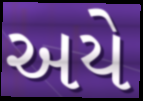
અયે